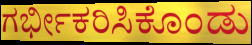
ಗರ್ಭೀಕರಿಸಿಕೊಂಡು